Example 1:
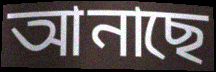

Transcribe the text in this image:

আনাছে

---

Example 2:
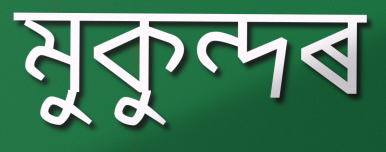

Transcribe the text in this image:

মুকুন্দৰ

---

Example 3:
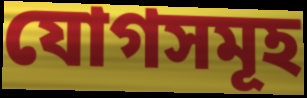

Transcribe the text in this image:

যোগসমূহ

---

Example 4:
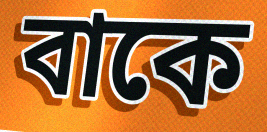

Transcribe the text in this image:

বাকে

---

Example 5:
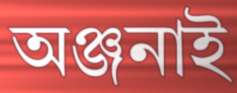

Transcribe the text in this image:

অঞ্জনাই